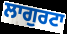
ਲਾਗੁਰਟਾ